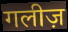
गलीज़